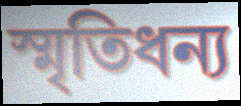
স্মৃতিধন্য